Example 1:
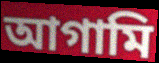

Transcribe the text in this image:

আগামি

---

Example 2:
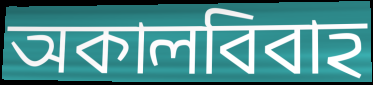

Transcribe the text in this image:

অকালবিবাহ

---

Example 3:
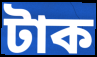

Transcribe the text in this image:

টাক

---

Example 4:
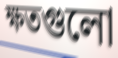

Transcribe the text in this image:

ক্ষতগুলো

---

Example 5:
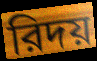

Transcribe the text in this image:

রিদয়